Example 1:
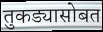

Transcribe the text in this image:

तुकड्यासोबत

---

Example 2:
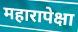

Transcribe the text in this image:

महारापेक्षा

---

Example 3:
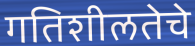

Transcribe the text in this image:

गतिशीलतेचे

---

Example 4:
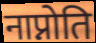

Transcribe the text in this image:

नाप्नोति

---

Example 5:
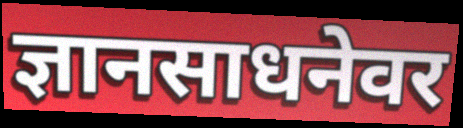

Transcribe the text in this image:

ज्ञानसाधनेवर